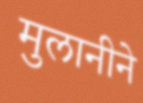
मुलानीने